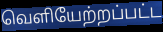
வெளியேற்றப்பட்ட